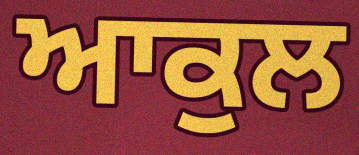
ਆਕੁਲ